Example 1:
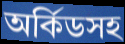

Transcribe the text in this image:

অর্কিডসহ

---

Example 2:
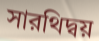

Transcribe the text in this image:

সারথিদ্বয়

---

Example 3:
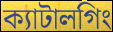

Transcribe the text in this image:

ক্যাটালগিং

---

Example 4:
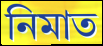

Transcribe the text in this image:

নিমাত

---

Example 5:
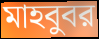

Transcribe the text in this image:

মাহবুবর